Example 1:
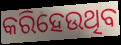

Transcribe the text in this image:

କରିହେଉଥିବ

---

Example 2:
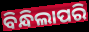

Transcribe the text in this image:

ବିନ୍ଧିଲାପରି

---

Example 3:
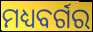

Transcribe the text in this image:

ମଧ୍ୟବର୍ଗର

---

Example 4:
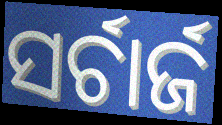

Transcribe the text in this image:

ସର୍ଚାର୍ଜ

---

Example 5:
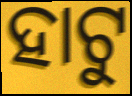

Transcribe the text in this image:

ହାଟୁ